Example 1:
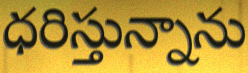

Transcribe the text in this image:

ధరిస్తున్నాను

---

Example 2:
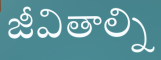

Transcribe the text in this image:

జీవితాల్ని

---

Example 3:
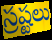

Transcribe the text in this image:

స్రష్టలు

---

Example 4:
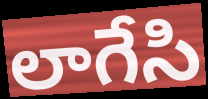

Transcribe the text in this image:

లాగేసి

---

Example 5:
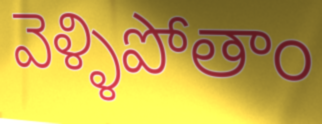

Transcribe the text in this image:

వెళ్ళిపోతాం